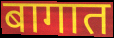
बागात